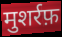
मुशर्रफ़